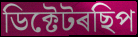
ডিক্টেটৰছিপ